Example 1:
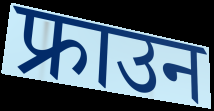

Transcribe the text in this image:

फ्राउन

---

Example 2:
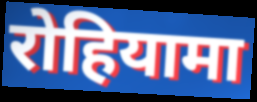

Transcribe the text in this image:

रोहियामा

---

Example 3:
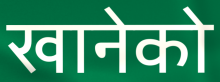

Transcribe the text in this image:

खानेको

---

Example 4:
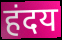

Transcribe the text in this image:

हंदय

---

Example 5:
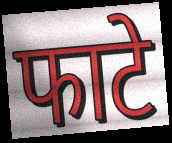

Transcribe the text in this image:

फाटे